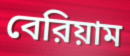
বেরিয়াম